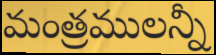
మంత్రములన్నీ